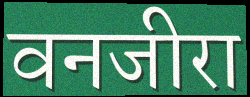
वनजीरा